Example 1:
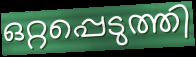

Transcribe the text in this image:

ഒറ്റപ്പെടുത്തി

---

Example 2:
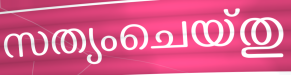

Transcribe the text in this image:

സത്യംചെയ്തു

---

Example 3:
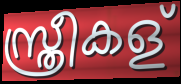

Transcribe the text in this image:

സ്ത്രീകള്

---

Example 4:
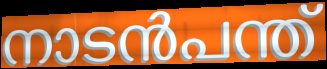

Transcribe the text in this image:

നാടൻപന്ത്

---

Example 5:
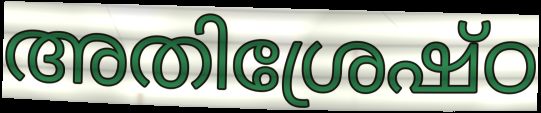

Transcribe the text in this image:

അതിശ്രേഷ്ഠ